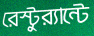
রেস্টুর‍্যান্টে